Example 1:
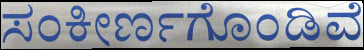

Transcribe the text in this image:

ಸಂಕೀರ್ಣಗೊಂಡಿವೆ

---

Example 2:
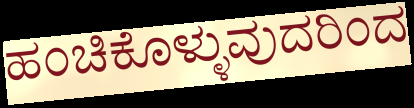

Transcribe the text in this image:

ಹಂಚಿಕೊಳ್ಳುವುದರಿಂದ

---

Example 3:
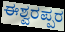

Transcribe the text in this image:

ಈಶ್ವರಪ್ಪರ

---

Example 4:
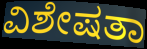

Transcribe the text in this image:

ವಿಶೇಷತಾ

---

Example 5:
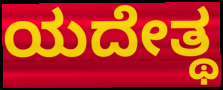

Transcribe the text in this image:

ಯದೇತ್ಥ